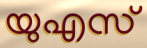
യുഎസ്